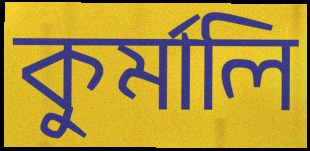
কুৰ্মালি